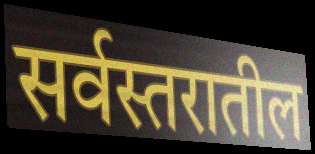
सर्वस्तरातील